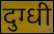
दुग्धी